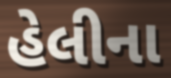
હેલીના